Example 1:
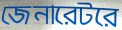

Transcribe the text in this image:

জেনারেটরে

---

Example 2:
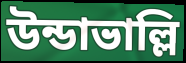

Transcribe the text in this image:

উন্ডাভাল্লি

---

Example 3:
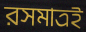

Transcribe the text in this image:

রসমাত্রই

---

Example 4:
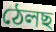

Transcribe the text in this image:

ঠেলছ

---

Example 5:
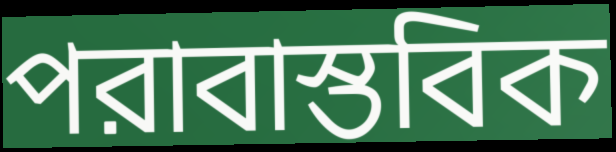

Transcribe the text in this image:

পরাবাস্তবিক